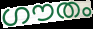
ഗൗതം